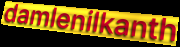
damlenilkanth